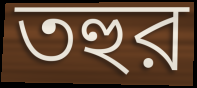
তহুর